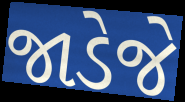
જાડેજે